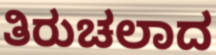
ತಿರುಚಲಾದ